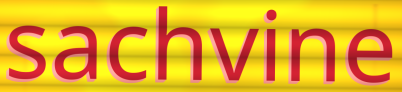
sachvine